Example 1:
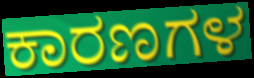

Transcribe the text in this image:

ಕಾರಣಗಳ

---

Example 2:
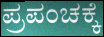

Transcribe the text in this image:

ಪ್ರಪಂಚಕ್ಕೆ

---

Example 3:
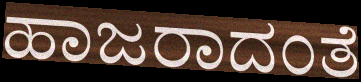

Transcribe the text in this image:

ಹಾಜರಾದಂತೆ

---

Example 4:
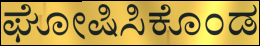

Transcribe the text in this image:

ಘೋಷಿಸಿಕೊಂಡ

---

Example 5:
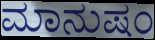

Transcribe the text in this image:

ಮಾನುಷಂ